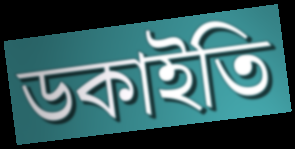
ডকাইতি